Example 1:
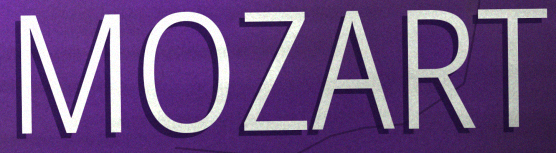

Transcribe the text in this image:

MOZART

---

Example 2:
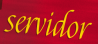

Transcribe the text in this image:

servidor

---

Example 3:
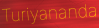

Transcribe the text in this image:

Turiyananda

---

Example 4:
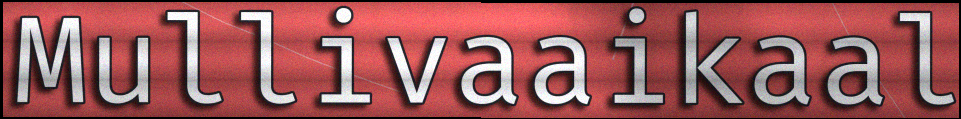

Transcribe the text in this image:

Mullivaaikaal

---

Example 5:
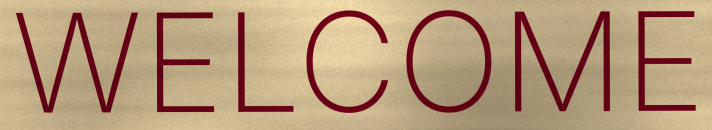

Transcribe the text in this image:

WELCOME